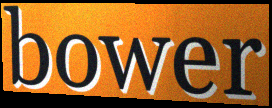
bower